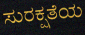
ಸುರಕ್ಷತೆಯ